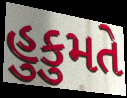
હુકુમતે